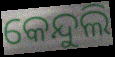
କେନ୍ଦୁଲି